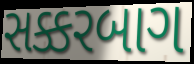
સક્કરબાગ